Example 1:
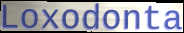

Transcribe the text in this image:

Loxodonta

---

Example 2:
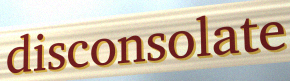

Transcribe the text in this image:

disconsolate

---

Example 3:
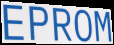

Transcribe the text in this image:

EPROM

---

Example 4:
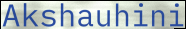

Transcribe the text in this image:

Akshauhini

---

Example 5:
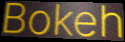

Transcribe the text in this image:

Bokeh